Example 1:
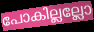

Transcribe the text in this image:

പോകില്ലല്ലോ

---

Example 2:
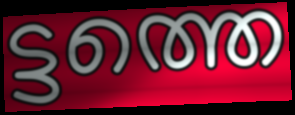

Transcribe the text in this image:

ട്ടത്തെ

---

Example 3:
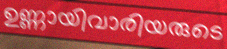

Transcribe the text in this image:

ഉണ്ണായിവാരിയരുടെ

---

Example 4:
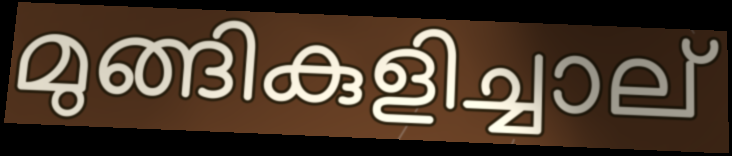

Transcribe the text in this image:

മുങ്ങികുളിച്ചാല്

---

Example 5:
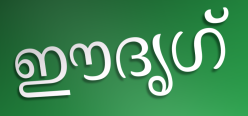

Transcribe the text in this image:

ഈദൃഗ്